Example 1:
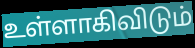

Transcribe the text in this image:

உள்ளாகிவிடும்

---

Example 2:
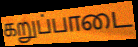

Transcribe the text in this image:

கறுப்பாடை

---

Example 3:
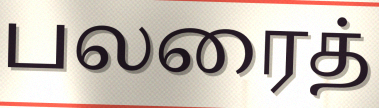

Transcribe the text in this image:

பலரைத்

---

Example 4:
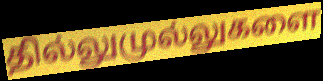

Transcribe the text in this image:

தில்லுமுல்லுகளை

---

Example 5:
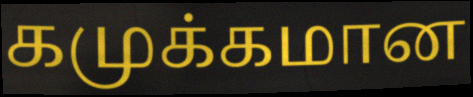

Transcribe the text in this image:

கமுக்கமான